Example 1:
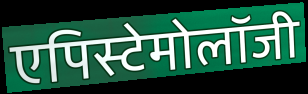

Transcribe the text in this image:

एपिस्टेमोलॉजी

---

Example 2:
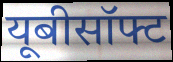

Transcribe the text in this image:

यूबीसॉफ्ट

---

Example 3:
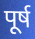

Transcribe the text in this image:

पूर्ष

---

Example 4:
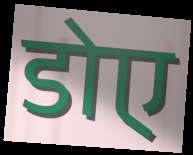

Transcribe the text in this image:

डोए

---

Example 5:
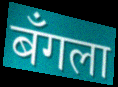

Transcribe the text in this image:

बँगला